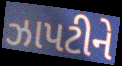
ઝાપટીને